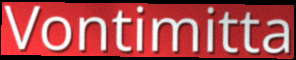
Vontimitta